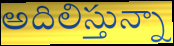
అదిలిస్తున్నా